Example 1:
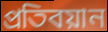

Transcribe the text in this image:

প্রতিবয়ান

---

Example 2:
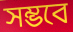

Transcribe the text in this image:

সম্ভবে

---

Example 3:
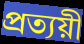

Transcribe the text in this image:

প্রত্যয়ী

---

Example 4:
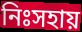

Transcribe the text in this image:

নিঃসহায়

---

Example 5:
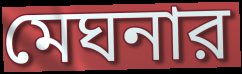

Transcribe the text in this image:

মেঘনার